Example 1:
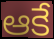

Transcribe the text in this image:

ఆకే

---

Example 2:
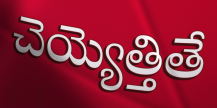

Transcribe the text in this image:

చెయ్యెత్తితే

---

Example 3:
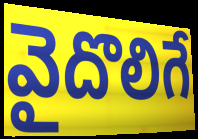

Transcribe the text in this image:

వైదొలిగే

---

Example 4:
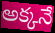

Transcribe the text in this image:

అక్కనే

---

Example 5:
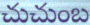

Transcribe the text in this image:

చుచుంబ